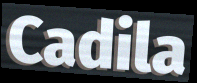
Cadila